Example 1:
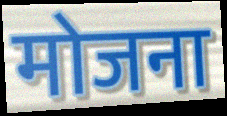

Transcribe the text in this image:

मोजना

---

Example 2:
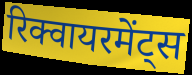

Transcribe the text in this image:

रिक्वायरमेंट्स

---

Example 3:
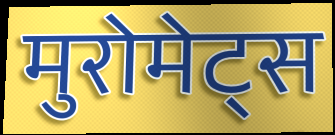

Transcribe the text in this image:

मुरोमेट्स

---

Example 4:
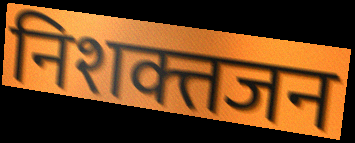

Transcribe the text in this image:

निशक्तजन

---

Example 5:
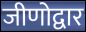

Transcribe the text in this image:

जीणोद्वार